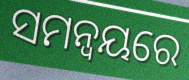
ସମନ୍ବୟରେ